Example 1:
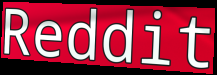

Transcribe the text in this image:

Reddit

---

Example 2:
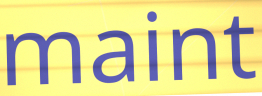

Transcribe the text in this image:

maint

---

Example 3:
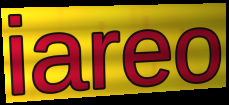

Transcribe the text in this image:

iareo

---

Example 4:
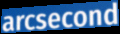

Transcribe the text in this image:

arcsecond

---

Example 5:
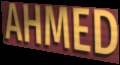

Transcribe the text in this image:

AHMED